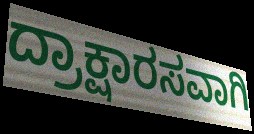
ದ್ರಾಕ್ಷಾರಸವಾಗಿ